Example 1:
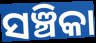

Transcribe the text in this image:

ସଞ୍ଚିକା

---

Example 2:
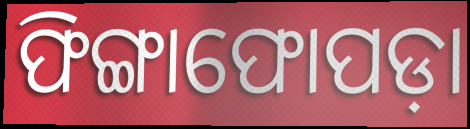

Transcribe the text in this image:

ଫିଙ୍ଗାଫୋପଡ଼ା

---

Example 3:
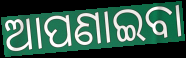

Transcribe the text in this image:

ଆପଣାଇବା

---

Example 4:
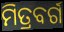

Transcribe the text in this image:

ମିତ୍ରବର୍ଗ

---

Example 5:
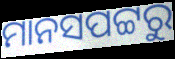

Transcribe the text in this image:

ମାନସପଟ୍ଟରୁ